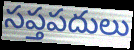
సప్తపదులు